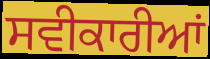
ਸਵੀਕਾਰੀਆਂ